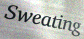
Sweating